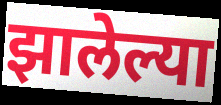
झालेल्या